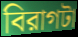
বিরাগটা